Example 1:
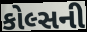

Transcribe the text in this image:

કોલ્સની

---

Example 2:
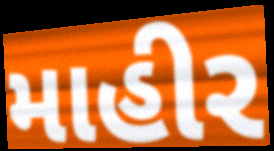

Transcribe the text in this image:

માહીર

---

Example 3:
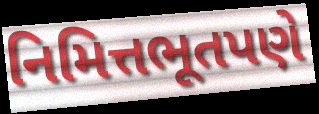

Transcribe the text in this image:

નિમિત્તભૂતપણે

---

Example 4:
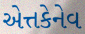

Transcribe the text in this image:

એત્તકેનેવ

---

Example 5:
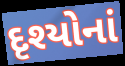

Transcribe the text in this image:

દૃશ્યોનાં